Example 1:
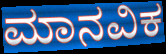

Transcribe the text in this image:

ಮಾನವಿಕ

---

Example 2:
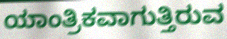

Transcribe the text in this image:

ಯಾಂತ್ರಿಕವಾಗುತ್ತಿರುವ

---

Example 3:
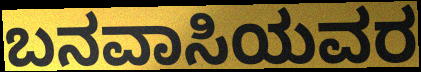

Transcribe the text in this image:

ಬನವಾಸಿಯವರ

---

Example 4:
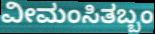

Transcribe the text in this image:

ವೀಮಂಸಿತಬ್ಬಂ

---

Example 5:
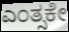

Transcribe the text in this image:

ಎಂತ್ಸಕೇ